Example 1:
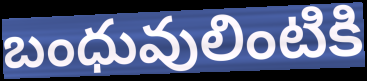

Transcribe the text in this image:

బంధువులింటికి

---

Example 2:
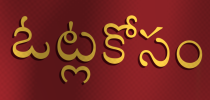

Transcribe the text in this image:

ఓట్లకోసం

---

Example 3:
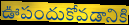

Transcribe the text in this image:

ఊపందుకోవడానికి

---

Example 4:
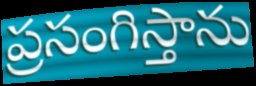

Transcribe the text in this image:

ప్రసంగిస్తాను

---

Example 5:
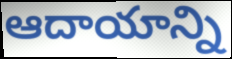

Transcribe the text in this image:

ఆదాయాన్ని